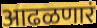
आढळणारं